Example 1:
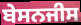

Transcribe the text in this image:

ਬੇਸਨਜੀਸ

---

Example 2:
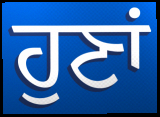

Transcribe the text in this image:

ਹੁਣਾਂ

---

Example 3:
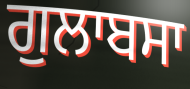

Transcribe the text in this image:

ਗੁਲਾਬਸਾ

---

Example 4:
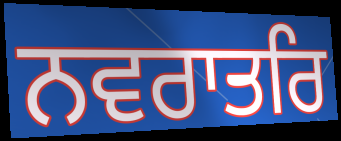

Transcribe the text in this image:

ਨਵਰਾਤਰਿ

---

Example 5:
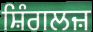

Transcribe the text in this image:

ਸ਼ਿੰਗਲਜ਼